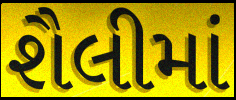
શૈલીમાં